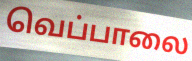
வெப்பாலை